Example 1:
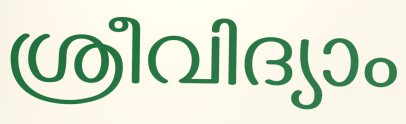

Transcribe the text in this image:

ശ്രീവിദ്യാം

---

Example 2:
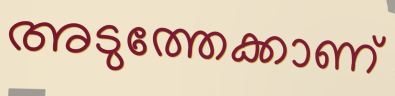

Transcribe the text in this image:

അടുത്തേക്കാണ്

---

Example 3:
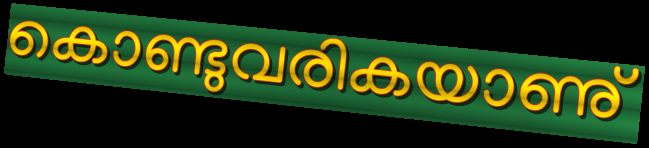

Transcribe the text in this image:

കൊണ്ടുവരികയാണു്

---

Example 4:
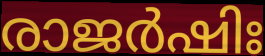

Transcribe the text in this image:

രാജർഷിഃ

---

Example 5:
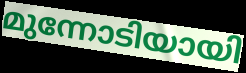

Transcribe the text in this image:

മുന്നോടിയായി